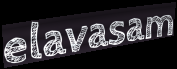
elavasam